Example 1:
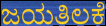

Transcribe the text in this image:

ಜಯತಿಲಕೆ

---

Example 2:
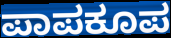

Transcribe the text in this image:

ಪಾಪಕೂಪ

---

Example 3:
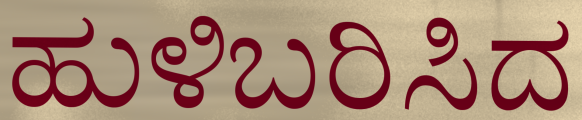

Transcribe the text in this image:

ಹುಳಿಬರಿಸಿದ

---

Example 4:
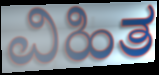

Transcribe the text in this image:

ವಿಹಿತ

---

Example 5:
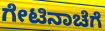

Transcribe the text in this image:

ಗೇಟಿನಾಚೆಗೆ